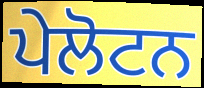
ਪੇਲੋਟਨ